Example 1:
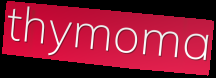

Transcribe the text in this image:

thymoma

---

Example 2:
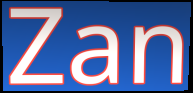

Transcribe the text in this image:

Zan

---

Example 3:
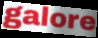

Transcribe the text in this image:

galore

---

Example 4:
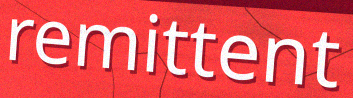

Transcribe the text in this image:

remittent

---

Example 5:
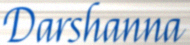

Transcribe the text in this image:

Darshanna